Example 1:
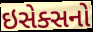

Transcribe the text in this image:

ઇસેક્સનો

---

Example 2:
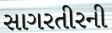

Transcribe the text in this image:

સાગરતીરની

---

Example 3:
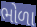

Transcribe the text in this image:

ભોળા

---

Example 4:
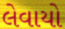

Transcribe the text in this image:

લેવાયો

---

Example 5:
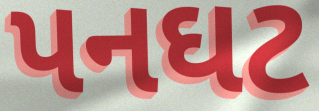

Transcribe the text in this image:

પનઘટ